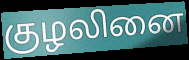
குழலினை